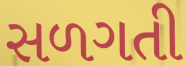
સળગતી